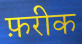
फ़रीक